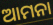
ଆମନା